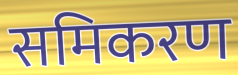
समिकरण